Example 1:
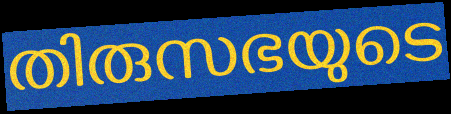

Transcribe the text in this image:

തിരുസഭയുടെ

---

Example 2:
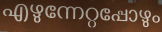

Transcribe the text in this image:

എഴുന്നേറ്റപ്പോഴും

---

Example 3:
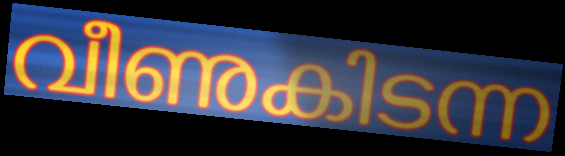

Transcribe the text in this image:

വീണുകിടന്ന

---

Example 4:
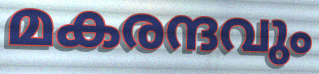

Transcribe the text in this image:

മകരന്ദവും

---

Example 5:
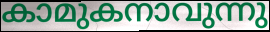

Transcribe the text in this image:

കാമുകനാവുന്നു